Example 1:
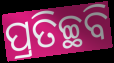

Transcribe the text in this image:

ପ୍ରତିଚ୍ଛବି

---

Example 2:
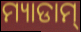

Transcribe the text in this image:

ମ୍ଯାଡାମ୍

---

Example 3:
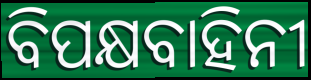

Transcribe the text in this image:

ବିପକ୍ଷବାହିନୀ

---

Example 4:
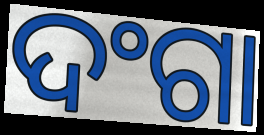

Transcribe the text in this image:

ଦଂଗା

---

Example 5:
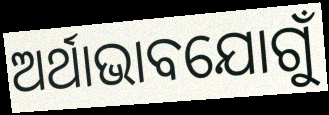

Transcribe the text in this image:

ଅର୍ଥାଭାବଯୋଗୁଁ